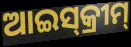
ଆଇସ୍‌କ୍ରୀମ୍